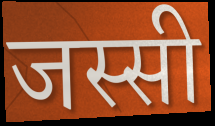
जस्सी